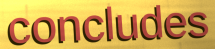
concludes